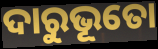
ଦାରୁଭୂତୋ